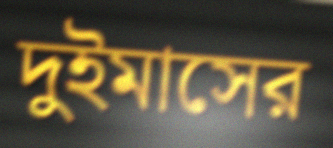
দুইমাসের